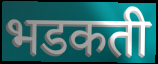
भडकती